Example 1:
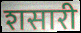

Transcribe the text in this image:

शसारी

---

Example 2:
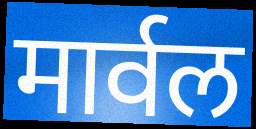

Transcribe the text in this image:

मार्वल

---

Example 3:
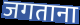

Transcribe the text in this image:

जगताना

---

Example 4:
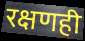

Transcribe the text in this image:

रक्षणही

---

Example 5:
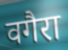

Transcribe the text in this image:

वगैरा